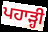
ਪਹਾੜ੍ਹੀ